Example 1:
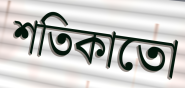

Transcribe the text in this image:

শতিকাতো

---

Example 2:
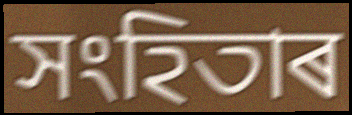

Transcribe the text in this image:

সংহিতাৰ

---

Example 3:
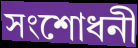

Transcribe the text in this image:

সংশোধনী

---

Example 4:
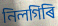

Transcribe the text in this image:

নিলগিৰি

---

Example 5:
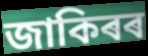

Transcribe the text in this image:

জাকিৰৰ